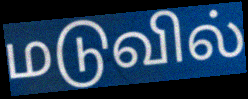
மடுவில்